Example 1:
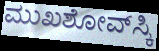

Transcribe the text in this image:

ಮುಖಶೋವ್‌ಸ್ಕಿ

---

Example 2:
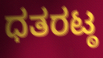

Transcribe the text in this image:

ಧತರಟ್ಠ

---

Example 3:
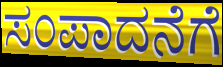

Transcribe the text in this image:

ಸಂಪಾದನೆಗೆ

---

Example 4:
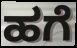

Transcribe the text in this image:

ಹಗೆ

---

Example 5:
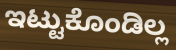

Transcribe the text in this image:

ಇಟ್ಟುಕೊಂಡಿಲ್ಲ